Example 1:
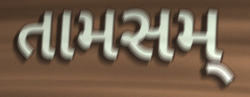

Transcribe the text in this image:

તામસમ્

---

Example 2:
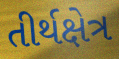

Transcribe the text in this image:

તીર્થક્ષેત્ર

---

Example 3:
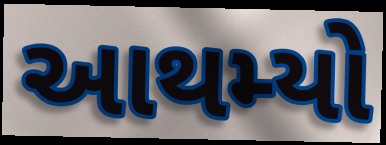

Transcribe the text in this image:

આથમ્યો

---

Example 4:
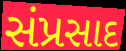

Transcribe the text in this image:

સંપ્રસાદ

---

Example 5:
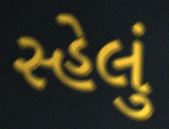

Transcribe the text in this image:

સ્હેલું